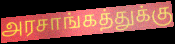
அரசாங்கத்துக்கு